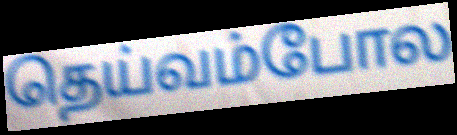
தெய்வம்போல